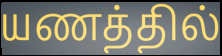
யணத்தில்